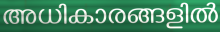
അധികാരങ്ങളിൽ